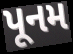
પૂનમ